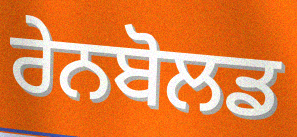
ਰੇਨਬੋਲਡ